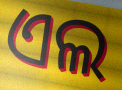
ଏଲ